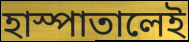
হাস্পাতালেই